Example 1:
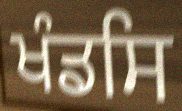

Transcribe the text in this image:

ਖੰਡਸਿ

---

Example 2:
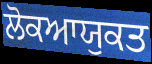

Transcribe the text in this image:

ਲੋਕਆਯੁਕਤ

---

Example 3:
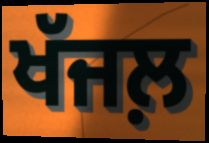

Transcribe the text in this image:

ਖੱਜਲ਼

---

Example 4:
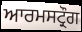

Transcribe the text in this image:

ਆਰਮਸਟ੍ਰੌਗ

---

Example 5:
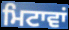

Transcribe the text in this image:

ਮਿਟਾਵਾਂ